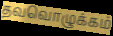
தவவொழுக்கம்